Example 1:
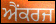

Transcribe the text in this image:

ਐਂਕਰਜ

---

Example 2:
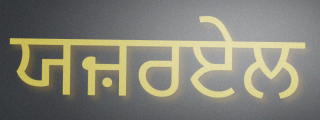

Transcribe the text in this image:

ਯਜ਼ਰਏਲ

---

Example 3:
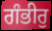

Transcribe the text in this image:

ਗੰਭੀਰੁ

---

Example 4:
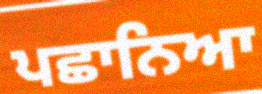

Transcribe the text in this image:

ਪਛਾਨਿਆ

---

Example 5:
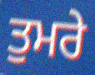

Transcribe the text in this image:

ਤੁਮਰੇ